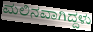
ಮಲಿನವಾಗಿದ್ದಳು